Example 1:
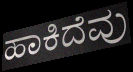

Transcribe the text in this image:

ಹಾಕಿದೆವು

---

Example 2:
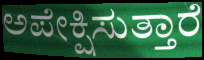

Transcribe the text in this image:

ಅಪೇಕ್ಷಿಸುತ್ತಾರೆ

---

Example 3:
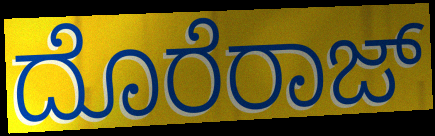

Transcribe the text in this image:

ದೊರೆರಾಜ್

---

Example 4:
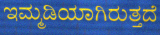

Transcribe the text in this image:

ಇಮ್ಮಡಿಯಾಗಿರುತ್ತದೆ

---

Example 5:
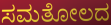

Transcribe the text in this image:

ಸಮತೋಲದ